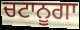
ਚਟਾਨੂਗਾ